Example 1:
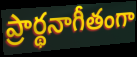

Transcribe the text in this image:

ప్రార్థనాగీతంగా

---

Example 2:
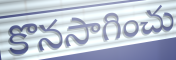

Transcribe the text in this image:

కొనసాగించు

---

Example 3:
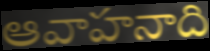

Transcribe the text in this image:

ఆవాహనాది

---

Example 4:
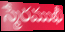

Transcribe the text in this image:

స్మేరముఖీ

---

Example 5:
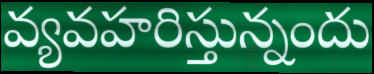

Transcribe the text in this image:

వ్యవహరిస్తున్నందు